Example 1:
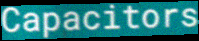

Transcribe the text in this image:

Capacitors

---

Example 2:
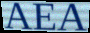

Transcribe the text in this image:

AEA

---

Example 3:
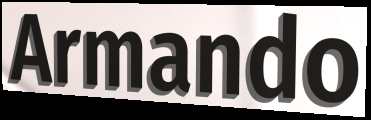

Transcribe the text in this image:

Armando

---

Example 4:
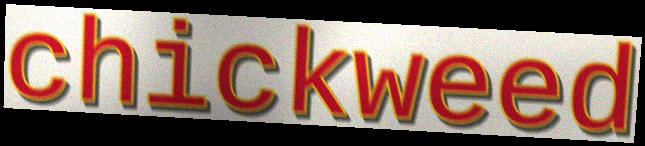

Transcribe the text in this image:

chickweed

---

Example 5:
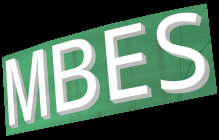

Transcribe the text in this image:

MBES